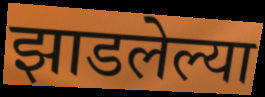
झाडलेल्या